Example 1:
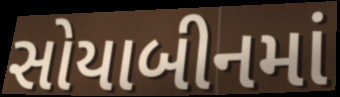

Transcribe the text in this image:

સોયાબીનમાં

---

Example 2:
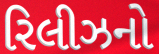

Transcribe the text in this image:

રિલીઝનો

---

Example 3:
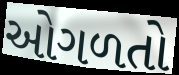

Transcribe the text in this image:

ઓગળતો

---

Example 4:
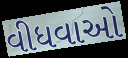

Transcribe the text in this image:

વીધવાઓ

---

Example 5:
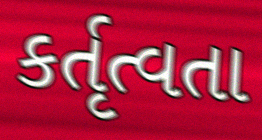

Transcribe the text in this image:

કર્તૃત્વતા